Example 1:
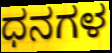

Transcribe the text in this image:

ಧನಗಳ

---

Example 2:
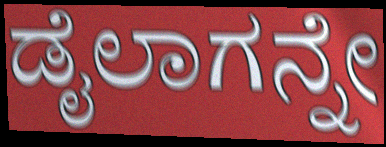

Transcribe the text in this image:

ಡೈಲಾಗನ್ನೇ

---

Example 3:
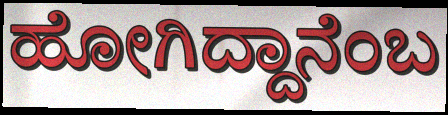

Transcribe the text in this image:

ಹೋಗಿದ್ದಾನೆಂಬ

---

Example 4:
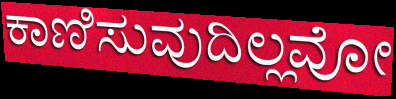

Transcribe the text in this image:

ಕಾಣಿಸುವುದಿಲ್ಲವೋ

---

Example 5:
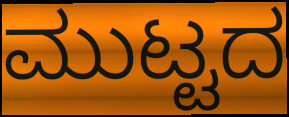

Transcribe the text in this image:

ಮುಟ್ಟದ